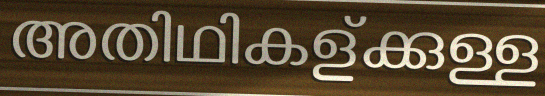
അതിഥികള്ക്കുള്ള